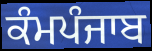
ਕੰਮਪੰਜਾਬ